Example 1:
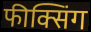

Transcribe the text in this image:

फीक्सिंग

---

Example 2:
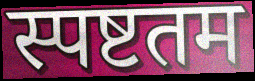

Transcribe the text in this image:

स्पष्टतम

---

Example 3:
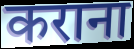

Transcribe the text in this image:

कराना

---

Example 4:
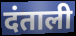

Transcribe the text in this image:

दंताली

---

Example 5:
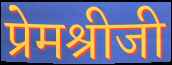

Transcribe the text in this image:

प्रेमश्रीजी